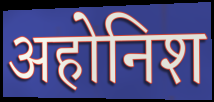
अहोनिश